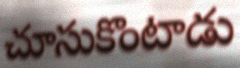
చూసుకొంటాడు